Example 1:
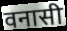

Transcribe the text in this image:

वनासी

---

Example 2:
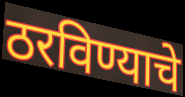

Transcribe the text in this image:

ठरविण्याचे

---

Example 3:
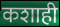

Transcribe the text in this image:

कशाही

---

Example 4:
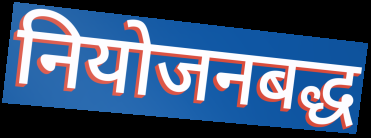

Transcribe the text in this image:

नियोजनबद्ध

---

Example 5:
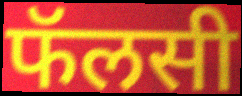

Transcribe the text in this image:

फॅलसी